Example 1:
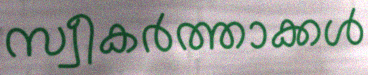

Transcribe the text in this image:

സ്വീകർത്താക്കൾ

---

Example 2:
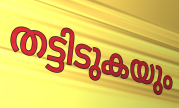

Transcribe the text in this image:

തട്ടിടുകയും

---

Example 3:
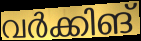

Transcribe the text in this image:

വർക്കിങ്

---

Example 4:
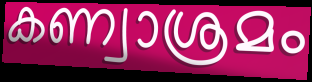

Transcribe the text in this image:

കണ്വാശ്രമം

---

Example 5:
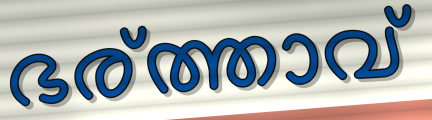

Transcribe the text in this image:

ഭര്ത്താവ്